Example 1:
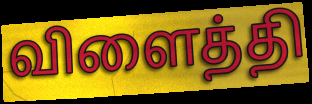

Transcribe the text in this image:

விளைத்தி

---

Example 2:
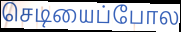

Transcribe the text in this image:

செடியைப்போல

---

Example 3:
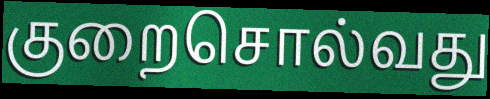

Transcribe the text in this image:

குறைசொல்வது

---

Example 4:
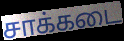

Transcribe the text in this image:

சாக்கடை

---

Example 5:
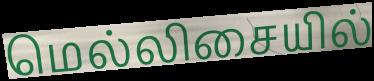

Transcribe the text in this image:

மெல்லிசையில்